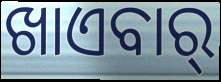
ଖାଏବାର୍